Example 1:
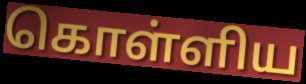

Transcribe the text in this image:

கொள்ளிய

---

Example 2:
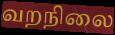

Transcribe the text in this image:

வறநிலை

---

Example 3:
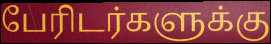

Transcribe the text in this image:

பேரிடர்களுக்கு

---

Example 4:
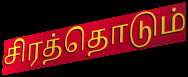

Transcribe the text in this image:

சிரத்தொடும்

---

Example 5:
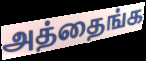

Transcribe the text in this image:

அத்தைங்க